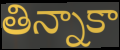
తిన్నాకా